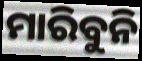
ମାରିବୁନି